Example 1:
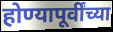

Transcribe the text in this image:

होण्यापूर्वींच्या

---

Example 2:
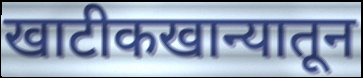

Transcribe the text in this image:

खाटीकखान्यातून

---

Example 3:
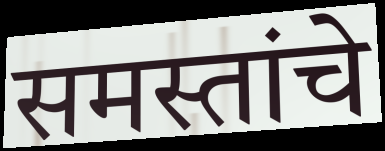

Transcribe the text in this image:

समस्तांचे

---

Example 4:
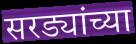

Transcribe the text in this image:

सरड्यांच्या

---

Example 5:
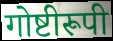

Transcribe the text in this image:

गोष्टीरूपी